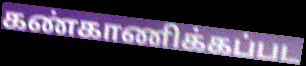
கண்காணிக்கப்பட